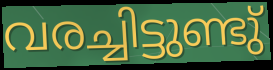
വരച്ചിട്ടുണ്ടു്